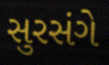
સુરસંગે